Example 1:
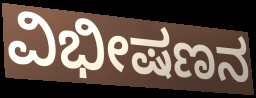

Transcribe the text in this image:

ವಿಭೀಷಣನ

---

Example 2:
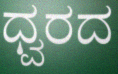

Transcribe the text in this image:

ಧ್ವರದ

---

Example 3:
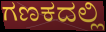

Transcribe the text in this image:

ಗಣಕದಲ್ಲಿ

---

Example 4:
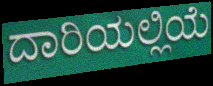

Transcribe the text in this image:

ದಾರಿಯಲ್ಲಿಯೆ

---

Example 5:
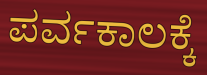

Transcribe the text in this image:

ಪರ್ವಕಾಲಕ್ಕೆ